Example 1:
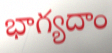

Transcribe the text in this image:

భాగ్యదాం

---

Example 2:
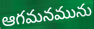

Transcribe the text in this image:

ఆగమనమును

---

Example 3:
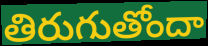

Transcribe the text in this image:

తిరుగుతోందా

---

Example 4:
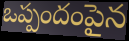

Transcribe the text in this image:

ఒప్పందంపైన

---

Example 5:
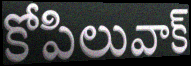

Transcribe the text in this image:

కోపిలువాక్